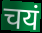
चयं